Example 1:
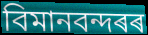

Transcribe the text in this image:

বিমানবন্দৰৰ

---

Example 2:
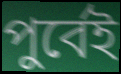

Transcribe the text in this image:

পুৰ্বেই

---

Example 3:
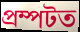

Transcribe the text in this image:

প্ৰম্পটত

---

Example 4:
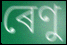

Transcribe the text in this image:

ৰেণু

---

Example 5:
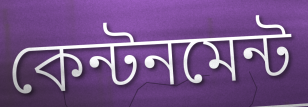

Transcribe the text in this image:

কেন্টনমেন্ট